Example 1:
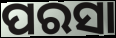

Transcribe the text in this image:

ପରସା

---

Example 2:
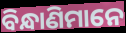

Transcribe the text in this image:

ବିନ୍ଧାଣିମାନେ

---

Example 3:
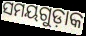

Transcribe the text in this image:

ସମୟଗୁଡ଼ାକ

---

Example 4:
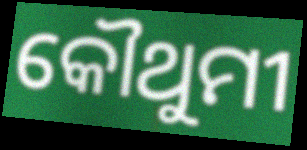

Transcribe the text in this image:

କୌଥୁମୀ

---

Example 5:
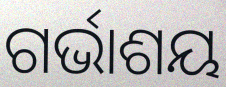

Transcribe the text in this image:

ଗର୍ଭାଶୟ